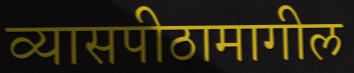
व्यासपीठामागील